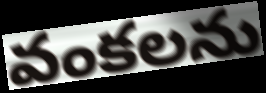
వంకలను